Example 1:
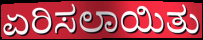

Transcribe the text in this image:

ಏರಿಸಲಾಯಿತು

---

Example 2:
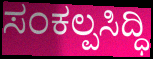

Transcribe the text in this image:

ಸಂಕಲ್ಪಸಿದ್ಧಿ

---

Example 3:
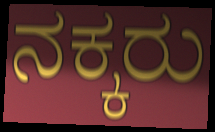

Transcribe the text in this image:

ನಕ್ಕರು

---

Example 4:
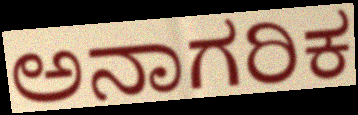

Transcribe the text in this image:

ಅನಾಗರಿಕ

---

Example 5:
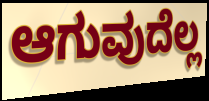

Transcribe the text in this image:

ಆಗುವುದೆಲ್ಲ